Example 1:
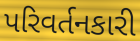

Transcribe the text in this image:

પરિવર્તનકારી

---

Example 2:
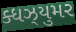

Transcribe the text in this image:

ક્ધઝ્યુમર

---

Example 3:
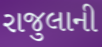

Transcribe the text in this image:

રાજુલાની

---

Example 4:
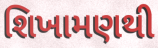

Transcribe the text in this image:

શિખામણથી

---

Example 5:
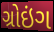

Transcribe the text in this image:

ગ્રોઇંગ